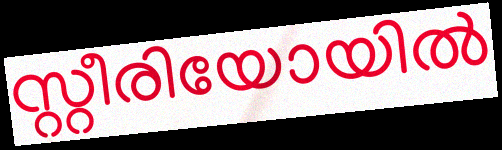
സ്റ്റീരിയോയിൽ